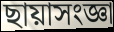
ছায়াসংজ্ঞা